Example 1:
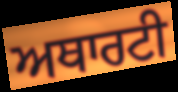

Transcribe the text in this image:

ਅਥਾਰਟੀ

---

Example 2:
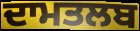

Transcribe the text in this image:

ਦਾਮਤਲਬ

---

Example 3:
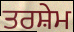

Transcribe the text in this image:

ਤਰਸ਼ੇਮ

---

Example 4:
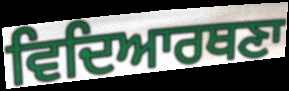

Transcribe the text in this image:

ਵਿਦਿਆਰਥਣਾ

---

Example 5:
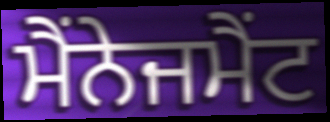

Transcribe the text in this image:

ਮੈਂਨੇਜਮੈਂਟ